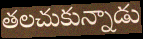
తలచుకున్నాడు